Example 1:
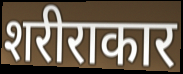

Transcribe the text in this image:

शरीराकार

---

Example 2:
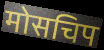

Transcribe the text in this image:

मोसचिप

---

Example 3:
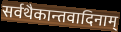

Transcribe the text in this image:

सर्वथैकान्तवादिनाम्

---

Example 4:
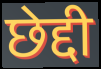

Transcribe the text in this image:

छेद्दी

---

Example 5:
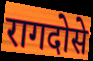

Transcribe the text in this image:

रागदोसे